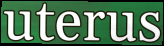
uterus